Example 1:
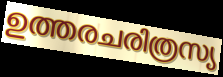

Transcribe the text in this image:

ഉത്തരചരിത്രസ്യ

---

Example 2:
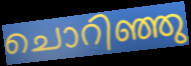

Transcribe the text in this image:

ചൊറിഞ്ഞു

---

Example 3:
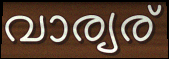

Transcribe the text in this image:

വാര്യര്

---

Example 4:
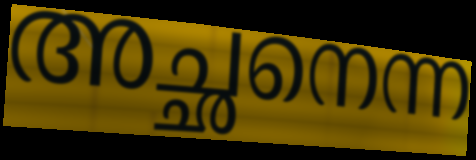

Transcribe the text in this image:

അച്ഛനെന്ന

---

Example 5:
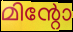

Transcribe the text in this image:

മിന്റോ